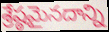
శ్రేష్ఠమైనదాన్ని